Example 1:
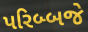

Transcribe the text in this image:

પરિબ્બજે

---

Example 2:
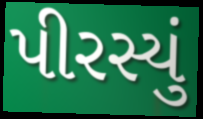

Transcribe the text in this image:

પીરસ્યું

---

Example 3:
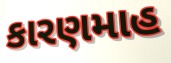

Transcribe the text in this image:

કારણમાહ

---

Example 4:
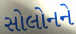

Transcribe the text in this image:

સોલોનને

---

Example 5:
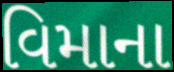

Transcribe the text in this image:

વિમાના